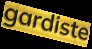
gardiste